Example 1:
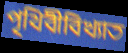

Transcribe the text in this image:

পৃথিবীবিখ্যাত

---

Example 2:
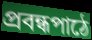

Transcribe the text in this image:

প্রবন্ধপাঠে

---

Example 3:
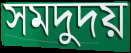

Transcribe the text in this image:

সমদুদয়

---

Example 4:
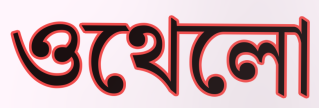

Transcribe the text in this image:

ওথেলো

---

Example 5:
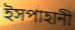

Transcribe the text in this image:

ইসপাহানী